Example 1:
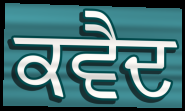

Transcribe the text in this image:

ਕਵੈਦ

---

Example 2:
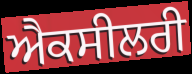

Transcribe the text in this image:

ਐਕਸੀਲਰੀ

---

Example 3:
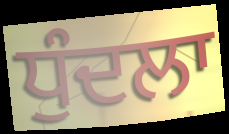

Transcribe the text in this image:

ਧੁੰਦਲਾ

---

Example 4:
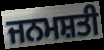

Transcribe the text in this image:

ਜਨਮਸ਼ਤੀ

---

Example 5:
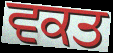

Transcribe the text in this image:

ਵਕਤ